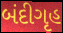
બંદીગૃહ